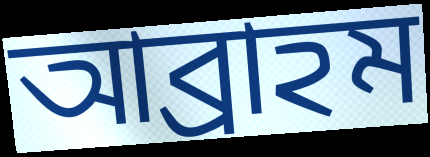
আব্ৰাহম